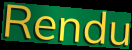
Rendu